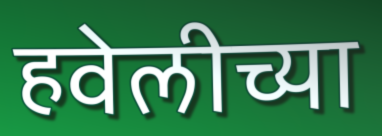
हवेलीच्या